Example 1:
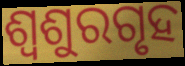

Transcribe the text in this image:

ଶ୍ୱଶୁରଗୃହ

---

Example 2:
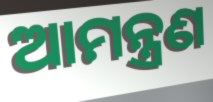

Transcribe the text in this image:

ଆମନ୍ତ୍ରଣ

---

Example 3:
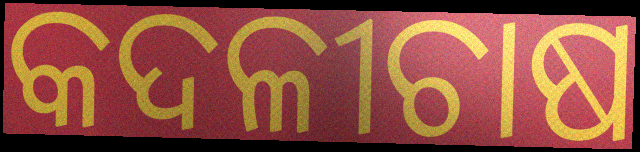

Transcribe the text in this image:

କଦଳୀଚାଷ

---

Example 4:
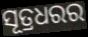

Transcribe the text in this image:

ସୂତ୍ରଧରର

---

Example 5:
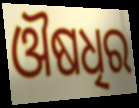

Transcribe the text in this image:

ଔଷଧିର